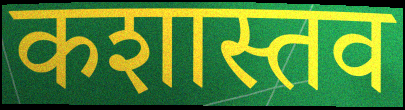
कशास्तव